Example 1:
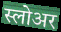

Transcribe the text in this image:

स्लोअर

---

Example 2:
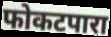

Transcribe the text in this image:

फोकटपारा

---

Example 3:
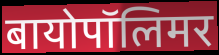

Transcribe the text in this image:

बायोपॉलिमर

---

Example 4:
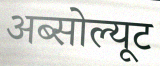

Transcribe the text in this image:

अब्सोल्यूट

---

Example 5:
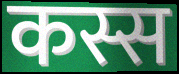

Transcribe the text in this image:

कस्स